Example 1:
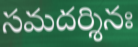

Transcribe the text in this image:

సమదర్శినః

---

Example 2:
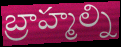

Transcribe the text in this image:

బ్రాహ్మల్ని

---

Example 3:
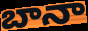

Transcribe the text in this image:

బానా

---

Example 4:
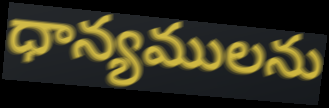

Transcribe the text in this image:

ధాన్యములను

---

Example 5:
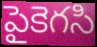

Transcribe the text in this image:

పైకెగసి